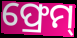
ଫ୍ରେମ୍